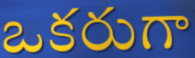
ఒకరుగా